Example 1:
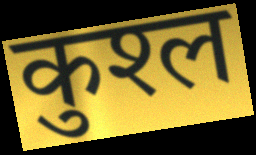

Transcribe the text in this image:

कुश्ल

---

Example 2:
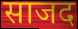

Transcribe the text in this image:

साजद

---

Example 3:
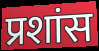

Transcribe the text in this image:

प्रशांस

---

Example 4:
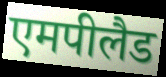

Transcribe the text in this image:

एमपीलैड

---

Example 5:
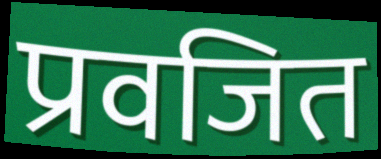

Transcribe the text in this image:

प्रवजित